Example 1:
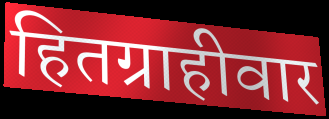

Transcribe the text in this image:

हितग्राहीवार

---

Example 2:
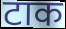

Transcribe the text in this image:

टाक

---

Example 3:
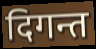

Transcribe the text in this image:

दिगन्त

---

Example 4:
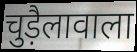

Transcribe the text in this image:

चुड़ैलावाला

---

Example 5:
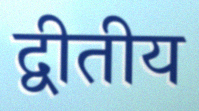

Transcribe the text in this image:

द्वीतीय